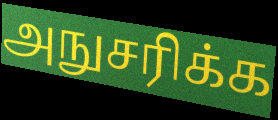
அநுசரிக்க